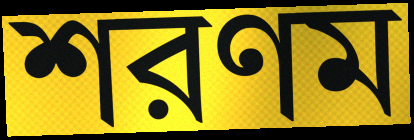
শরণম